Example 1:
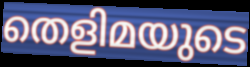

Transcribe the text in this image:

തെളിമയുടെ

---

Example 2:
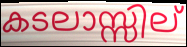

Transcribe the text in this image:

കടലാസ്സില്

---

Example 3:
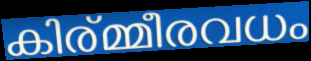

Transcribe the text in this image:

കിര്മ്മീരവധം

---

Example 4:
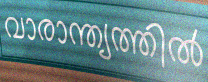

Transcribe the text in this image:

വാരാന്ത്യത്തിൽ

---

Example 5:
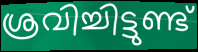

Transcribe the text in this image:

ശ്രവിച്ചിട്ടുണ്ട്